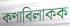
কণাবিলাকক